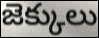
జెక్కులు